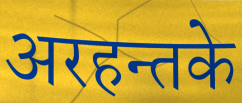
अरहन्तके